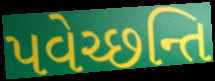
પવેચ્છન્તિ